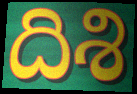
దిశి